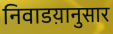
निवाडय़ानुसार